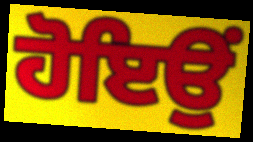
ਹੋਇਉਂ